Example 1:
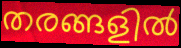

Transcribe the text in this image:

തരങ്ങളിൽ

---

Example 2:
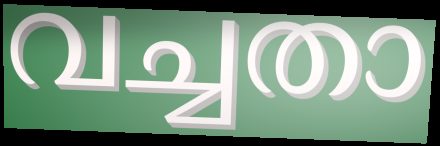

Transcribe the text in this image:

വച്ചതാ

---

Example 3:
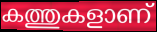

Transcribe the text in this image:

കത്തുകളാണ്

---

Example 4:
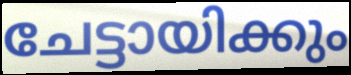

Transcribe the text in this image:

ചേട്ടായിക്കും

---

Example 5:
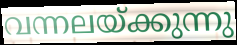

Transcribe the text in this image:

വന്നലയ്ക്കുന്നു